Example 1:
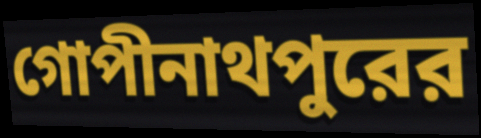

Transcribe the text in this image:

গোপীনাথপুরের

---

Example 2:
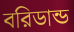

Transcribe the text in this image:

বরিডান্ড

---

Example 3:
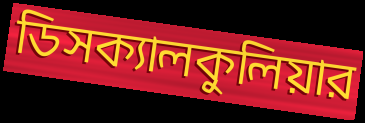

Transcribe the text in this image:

ডিসক্যালকুলিয়ার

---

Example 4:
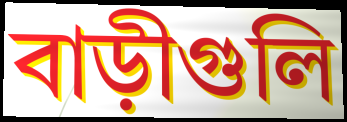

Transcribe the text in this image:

বাড়ীগুলি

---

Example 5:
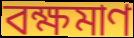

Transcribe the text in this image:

বক্ষমাণ